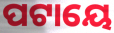
ପଟାୟେ